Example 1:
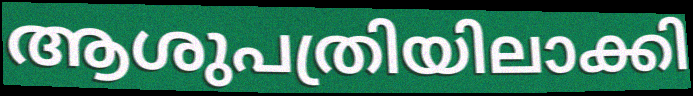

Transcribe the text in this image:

ആശുപത്രിയിലാക്കി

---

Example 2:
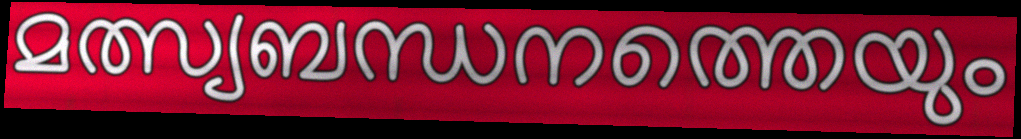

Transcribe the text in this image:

മത്സ്യബന്ധനത്തെയും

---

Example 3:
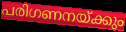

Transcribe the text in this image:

പരിഗണനയ്ക്കും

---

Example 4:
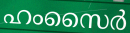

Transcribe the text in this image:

ഹംസൈർ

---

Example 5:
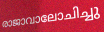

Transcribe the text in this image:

രാജാവാലോചിച്ചു